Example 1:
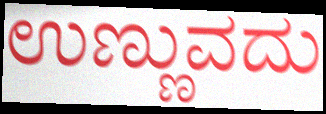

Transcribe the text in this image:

ಉಣ್ಣುವದು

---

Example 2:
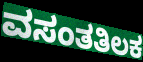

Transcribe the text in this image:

ವಸಂತತಿಲಕ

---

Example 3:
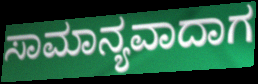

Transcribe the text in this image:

ಸಾಮಾನ್ಯವಾದಾಗ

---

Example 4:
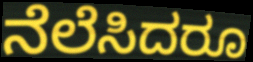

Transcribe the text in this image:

ನೆಲೆಸಿದರೂ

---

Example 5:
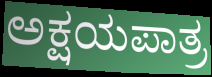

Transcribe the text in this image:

ಅಕ್ಷಯಪಾತ್ರ